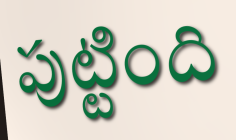
పుట్టింది